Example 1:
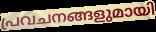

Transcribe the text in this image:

പ്രവചനങ്ങളുമായി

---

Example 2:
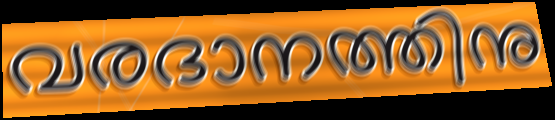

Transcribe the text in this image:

വരദാനത്തിനു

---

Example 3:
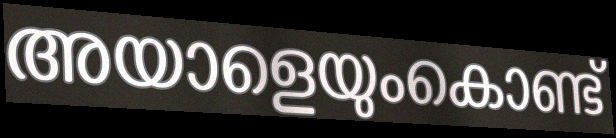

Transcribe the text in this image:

അയാളെയുംകൊണ്ട്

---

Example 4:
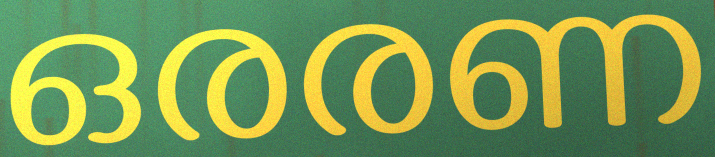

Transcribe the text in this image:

ഒരരണ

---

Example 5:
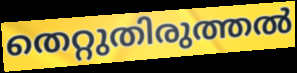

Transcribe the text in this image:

തെറ്റുതിരുത്തൽ